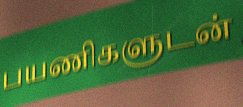
பயணிகளுடன்